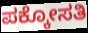
ಪಕ್ಕೋಸತಿ